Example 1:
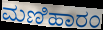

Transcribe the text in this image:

ಮಣಿಹಾರಂ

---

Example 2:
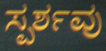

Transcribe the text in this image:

ಸ್ಪರ್ಶವು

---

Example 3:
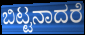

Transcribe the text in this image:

ಬಿಟ್ಟನಾದರೆ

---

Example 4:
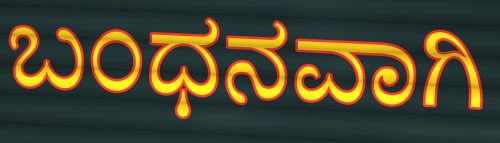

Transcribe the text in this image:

ಬಂಧನವಾಗಿ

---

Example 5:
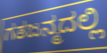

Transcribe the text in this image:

ಗತಜನ್ಮದಲ್ಲಿ